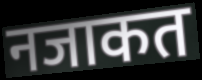
नजाकत